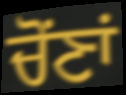
ਚੋਂਣਾਂ